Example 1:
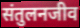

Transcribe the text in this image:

संतुलनजीव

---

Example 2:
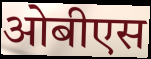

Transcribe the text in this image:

ओबीएस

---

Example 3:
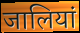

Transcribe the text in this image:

जालियां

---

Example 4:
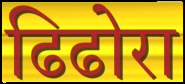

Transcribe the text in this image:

ढिढोरा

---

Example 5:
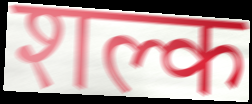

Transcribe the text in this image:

शल्क